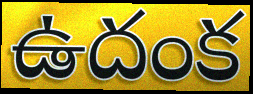
ఉదంక